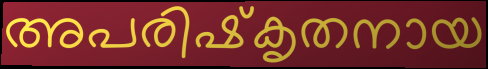
അപരിഷ്‌കൃതനായ